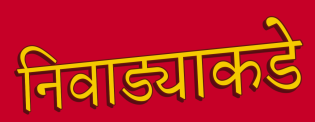
निवाड्याकडे